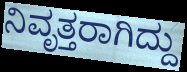
ನಿವೃತ್ತರಾಗಿದ್ದು